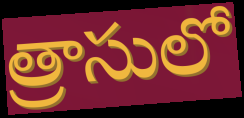
త్రాసులో